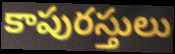
కాపురస్తులు